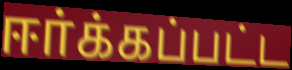
ஈர்க்கப்பட்ட